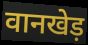
वानखेड़